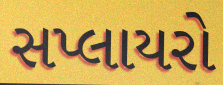
સપ્લાયરો